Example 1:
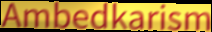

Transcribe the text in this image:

Ambedkarism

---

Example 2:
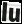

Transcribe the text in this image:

lu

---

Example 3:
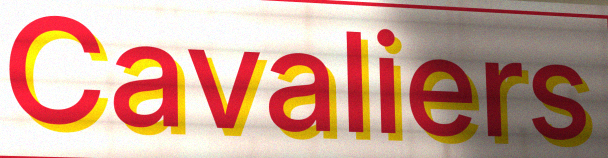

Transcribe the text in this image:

Cavaliers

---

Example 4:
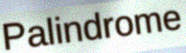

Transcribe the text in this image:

Palindrome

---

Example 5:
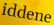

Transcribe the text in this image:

iddene